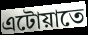
এটোয়াতে